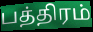
பத்திரம்